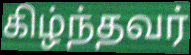
கிழ்ந்தவர்